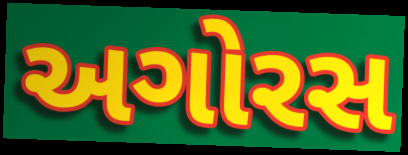
અગોરસ